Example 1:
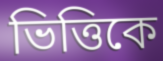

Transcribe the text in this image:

ভিত্তিকে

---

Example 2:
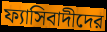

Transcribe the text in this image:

ফ্যাসিবাদীদের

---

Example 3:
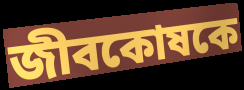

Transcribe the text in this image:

জীবকোষকে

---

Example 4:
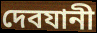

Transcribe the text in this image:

দেবযানী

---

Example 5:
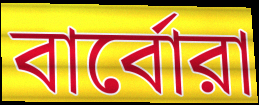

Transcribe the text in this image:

বার্বোরা